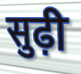
सुढ़ी